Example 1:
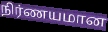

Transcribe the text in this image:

நிர்ணயமான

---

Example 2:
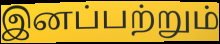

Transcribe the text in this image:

இனப்பற்றும்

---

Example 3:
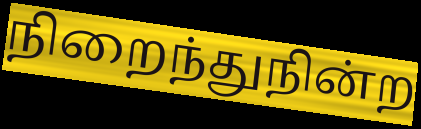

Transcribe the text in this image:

நிறைந்துநின்ற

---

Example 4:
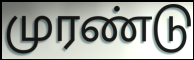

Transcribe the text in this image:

முரண்டு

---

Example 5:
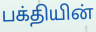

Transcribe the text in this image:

பக்தியின்